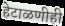
हेटाळणीही